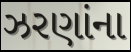
ઝરણાંના